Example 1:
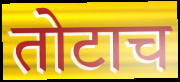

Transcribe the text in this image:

तोटाच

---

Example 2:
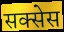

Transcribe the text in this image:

सक्सेस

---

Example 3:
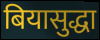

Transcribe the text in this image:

बियासुद्धा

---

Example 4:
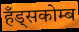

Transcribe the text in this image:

हँड्सकोम्ब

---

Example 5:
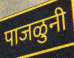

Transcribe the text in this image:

पाजळुनी